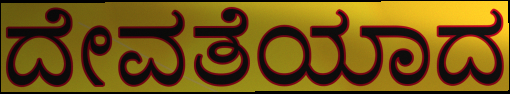
ದೇವತೆಯಾದ